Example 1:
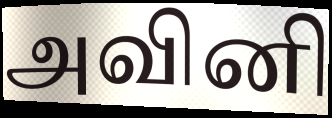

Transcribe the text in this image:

அவினி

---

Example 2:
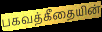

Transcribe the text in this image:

பகவத்கீதையின்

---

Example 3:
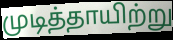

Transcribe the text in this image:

முடித்தாயிற்று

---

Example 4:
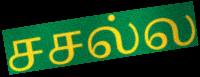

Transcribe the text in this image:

சசல்ல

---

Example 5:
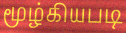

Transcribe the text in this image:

மூழ்கியபடி